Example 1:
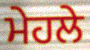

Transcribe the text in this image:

ਮੇਹਲੇ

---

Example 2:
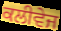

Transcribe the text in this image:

ਕਲੀਵੇਜ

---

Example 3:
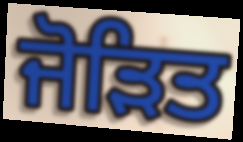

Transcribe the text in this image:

ਜੋੜਿਤ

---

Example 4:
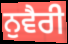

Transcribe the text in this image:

ਨੁਵੈਰੀ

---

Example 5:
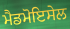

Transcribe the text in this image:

ਮੈਡਮੋਇਸੇਲ